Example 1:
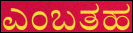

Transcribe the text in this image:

ಎಂಬತಹ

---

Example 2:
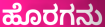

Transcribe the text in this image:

ಹೊರಗನು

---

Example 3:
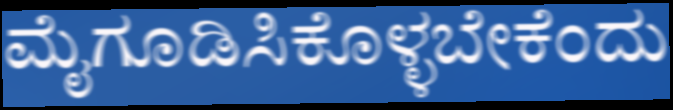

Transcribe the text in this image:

ಮೈಗೂಡಿಸಿಕೊಳ್ಳಬೇಕೆಂದು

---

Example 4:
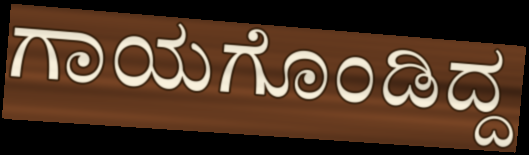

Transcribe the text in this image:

ಗಾಯಗೊಂಡಿದ್ದ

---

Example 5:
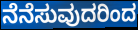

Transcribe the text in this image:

ನೆನೆಸುವುದರಿಂದ